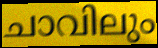
ചാവിലും